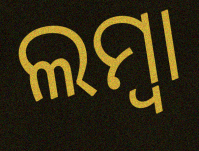
ଲମ୍ୱା